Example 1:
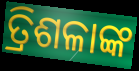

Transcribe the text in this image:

ତ୍ରିଶଳାଙ୍କ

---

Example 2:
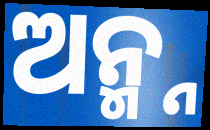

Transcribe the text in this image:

ଅନ୍ମ୍ନ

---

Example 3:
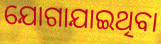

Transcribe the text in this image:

ଯୋଗାଯାଇଥିବା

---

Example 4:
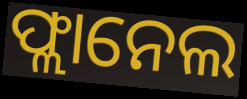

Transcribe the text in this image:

ଫ୍ଲାନେଲ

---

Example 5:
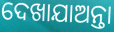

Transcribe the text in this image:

ଦେଖାଯାଅନ୍ତା